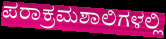
ಪರಾಕ್ರಮಶಾಲಿಗಳಲ್ಲಿ